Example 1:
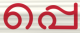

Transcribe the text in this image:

പ്പെ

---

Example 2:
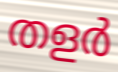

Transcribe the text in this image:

തളർ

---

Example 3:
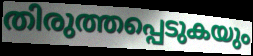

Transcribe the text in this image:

തിരുത്തപ്പെടുകയും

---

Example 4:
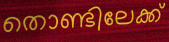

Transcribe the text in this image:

തൊണ്ടിലേക്ക്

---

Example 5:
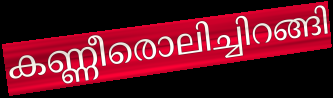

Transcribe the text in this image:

കണ്ണീരൊലിച്ചിറങ്ങി